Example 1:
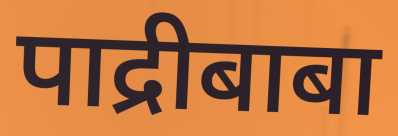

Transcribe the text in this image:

पाद्रीबाबा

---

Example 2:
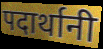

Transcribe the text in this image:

पदार्थानी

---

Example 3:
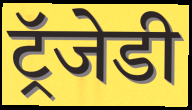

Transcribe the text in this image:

ट्रॅजेडी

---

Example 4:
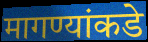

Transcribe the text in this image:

मागण्यांकडे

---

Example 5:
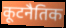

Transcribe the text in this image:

कूटनैतिक